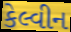
કેલ્વીન